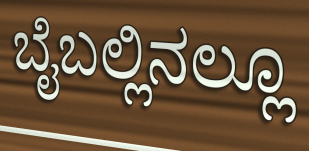
ಬೈಬಲ್ಲಿನಲ್ಲೂ